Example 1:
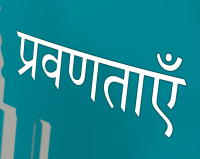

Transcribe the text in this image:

प्रवणताएँ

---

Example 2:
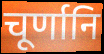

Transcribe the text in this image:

चूर्णानि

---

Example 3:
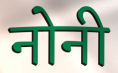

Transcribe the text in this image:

नोनी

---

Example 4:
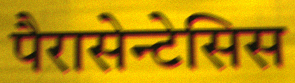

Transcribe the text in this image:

पैरासेन्टेसिस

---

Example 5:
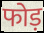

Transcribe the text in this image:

फोड़